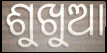
ଶୁଖୁଆ